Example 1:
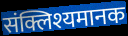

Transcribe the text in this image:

संक्लिश्यमानक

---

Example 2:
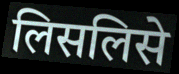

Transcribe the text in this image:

लिसलिसे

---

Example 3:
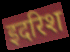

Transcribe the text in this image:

इदरिश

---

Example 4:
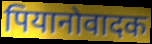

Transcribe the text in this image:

पियानोवादक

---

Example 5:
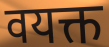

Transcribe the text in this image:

वयक्त